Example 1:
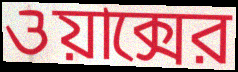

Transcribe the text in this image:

ওয়াক্সের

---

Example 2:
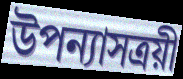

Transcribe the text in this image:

উপন্যাসত্রয়ী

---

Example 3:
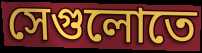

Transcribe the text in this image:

সেগুলোতে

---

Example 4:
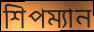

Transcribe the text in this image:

শিপম্যান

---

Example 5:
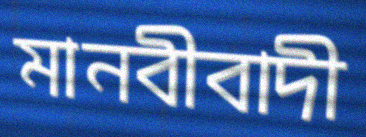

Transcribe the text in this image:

মানবীবাদী